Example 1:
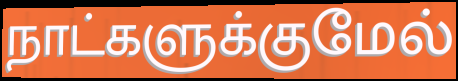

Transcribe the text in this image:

நாட்களுக்குமேல்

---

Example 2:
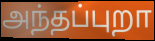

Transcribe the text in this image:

அந்தப்புறா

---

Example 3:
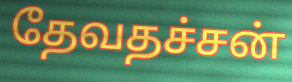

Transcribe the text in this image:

தேவதச்சன்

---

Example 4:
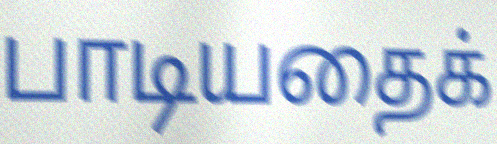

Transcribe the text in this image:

பாடியதைக்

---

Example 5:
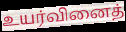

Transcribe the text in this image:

உயர்வினைத்